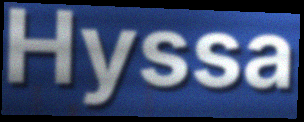
Hyssa